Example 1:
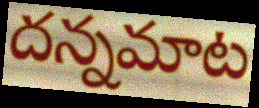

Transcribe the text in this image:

దన్నమాట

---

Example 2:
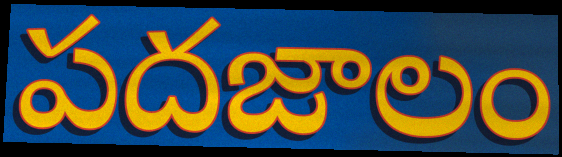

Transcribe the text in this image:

పదజాలం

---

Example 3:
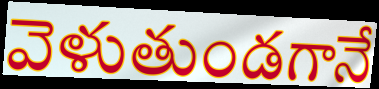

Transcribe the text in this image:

వెళుతుండగానే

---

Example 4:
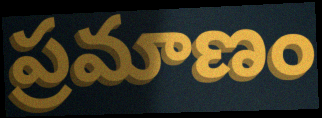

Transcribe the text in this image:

ప్రమాణం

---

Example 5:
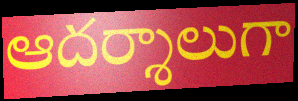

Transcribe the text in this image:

ఆదర్శాలుగా